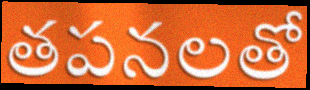
తపనలతో